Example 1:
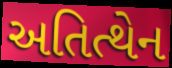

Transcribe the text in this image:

અતિત્થેન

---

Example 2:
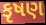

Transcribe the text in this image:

કૃષણ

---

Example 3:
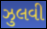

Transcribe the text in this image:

ઝુલવી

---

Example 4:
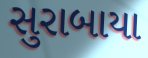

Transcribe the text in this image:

સુરાબાયા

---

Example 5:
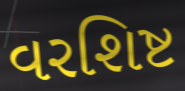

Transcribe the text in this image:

વરશિષ્ટ